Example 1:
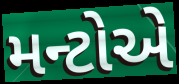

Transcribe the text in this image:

મન્ટોએ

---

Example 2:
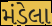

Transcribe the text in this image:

મંડેલા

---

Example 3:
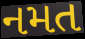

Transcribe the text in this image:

નમત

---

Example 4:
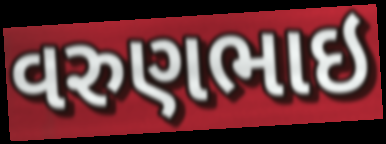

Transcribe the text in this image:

વરુણભાઇ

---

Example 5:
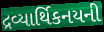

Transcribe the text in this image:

દ્રવ્યાર્થિકનયની